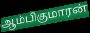
ஆம்பிகுமாரன்